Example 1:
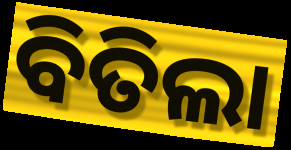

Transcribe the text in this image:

ବିତିଲା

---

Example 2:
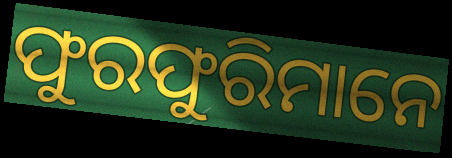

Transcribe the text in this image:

ଫୁରଫୁରିମାନେ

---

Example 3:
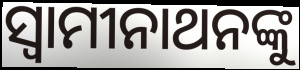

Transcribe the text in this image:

ସ୍ୱାମୀନାଥନଙ୍କୁ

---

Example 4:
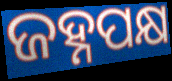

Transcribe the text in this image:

ଜହ୍ନପକ୍ଷ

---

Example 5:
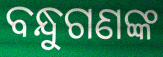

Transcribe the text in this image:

ବନ୍ଧୁଗଣଙ୍କ